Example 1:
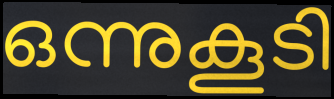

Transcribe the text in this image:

ഒന്നുകൂടി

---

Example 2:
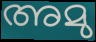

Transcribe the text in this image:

അമു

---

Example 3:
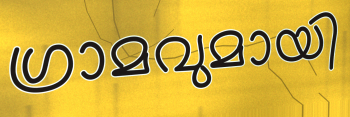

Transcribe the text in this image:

ഗ്രാമവുമായി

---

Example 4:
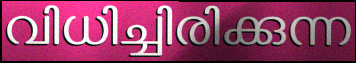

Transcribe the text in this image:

വിധിച്ചിരിക്കുന്ന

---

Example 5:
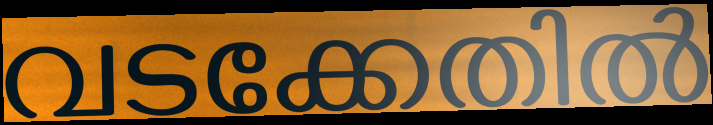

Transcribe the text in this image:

വടക്കേതിൽ